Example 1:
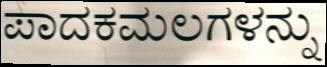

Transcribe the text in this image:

ಪಾದಕಮಲಗಳನ್ನು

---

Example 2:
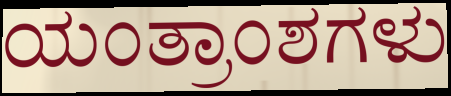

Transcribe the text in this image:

ಯಂತ್ರಾಂಶಗಳು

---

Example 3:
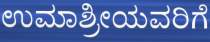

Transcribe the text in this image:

ಉಮಾಶ್ರೀಯವರಿಗೆ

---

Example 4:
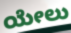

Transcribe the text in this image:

ಯೇಲು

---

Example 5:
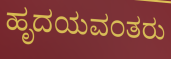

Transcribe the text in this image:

ಹೃದಯವಂತರು